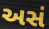
અસં